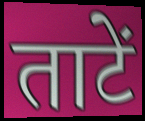
ताटें